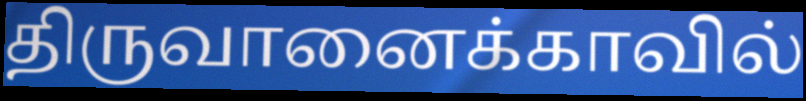
திருவானைக்காவில்